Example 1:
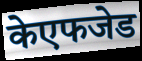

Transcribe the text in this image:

केएफजेड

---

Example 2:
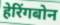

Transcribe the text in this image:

हेरिंगबोन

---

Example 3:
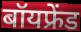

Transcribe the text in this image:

बॉयफ्रेंड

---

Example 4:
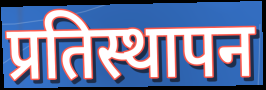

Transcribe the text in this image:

प्रतिस्थापन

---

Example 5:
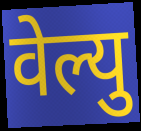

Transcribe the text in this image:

वेल्यु